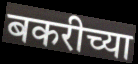
बकरीच्या